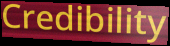
Credibility